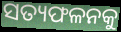
ସତ୍ୟଫଳନକୁ